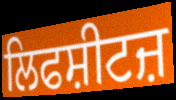
ਲਿਫਸ਼ੀਟਜ਼